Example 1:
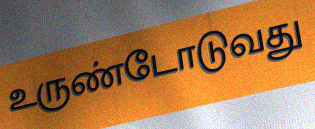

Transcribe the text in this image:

உருண்டோடுவது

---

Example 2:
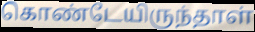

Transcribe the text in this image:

கொண்டேயிருந்தாள்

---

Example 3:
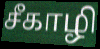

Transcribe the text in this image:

சீகாழி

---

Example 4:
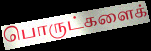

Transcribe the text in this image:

பொருட்களைக்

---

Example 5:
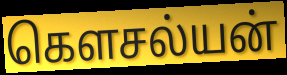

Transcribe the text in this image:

கௌசல்யன்